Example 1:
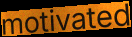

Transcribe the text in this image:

motivated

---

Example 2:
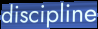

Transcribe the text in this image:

discipline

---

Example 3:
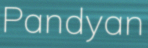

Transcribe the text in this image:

Pandyan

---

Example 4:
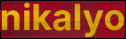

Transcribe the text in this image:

nikalyo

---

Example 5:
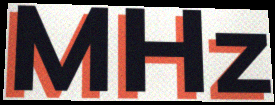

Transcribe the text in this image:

MHz